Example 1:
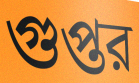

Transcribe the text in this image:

গুপ্তর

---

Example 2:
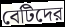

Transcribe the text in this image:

বেটিদের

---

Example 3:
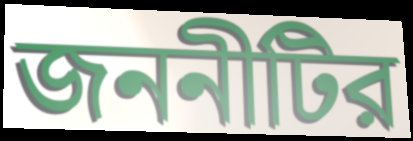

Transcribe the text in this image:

জননীটির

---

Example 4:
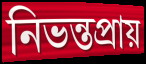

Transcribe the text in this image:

নিভন্তপ্রায়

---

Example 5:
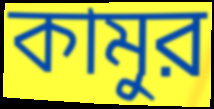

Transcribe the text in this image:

কামুর